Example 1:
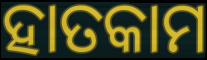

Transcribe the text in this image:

ହାତକାମ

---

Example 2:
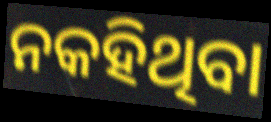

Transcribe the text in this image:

ନକହିଥିବା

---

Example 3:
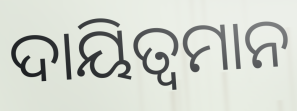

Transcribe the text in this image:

ଦାୟିତ୍ୱମାନ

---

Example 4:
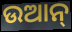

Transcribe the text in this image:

ଉଆନ୍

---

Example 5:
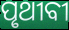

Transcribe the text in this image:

ପୃଥୀବୀ